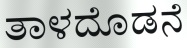
ತಾಳದೊಡನೆ